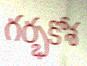
గర్భకోశ